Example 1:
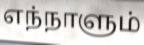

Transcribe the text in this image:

எந்நாளும்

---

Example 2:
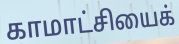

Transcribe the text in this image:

காமாட்சியைக்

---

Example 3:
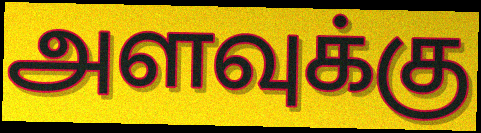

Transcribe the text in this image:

அளவுக்கு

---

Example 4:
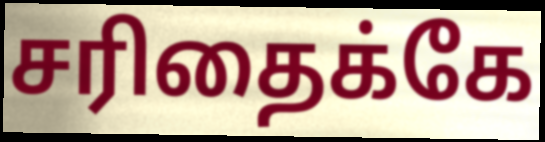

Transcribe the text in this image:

சரிதைக்கே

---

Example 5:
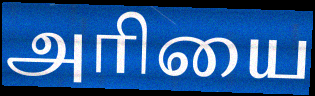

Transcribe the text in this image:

அரியை